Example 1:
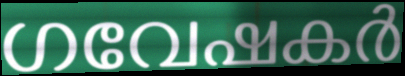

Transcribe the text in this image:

ഗവേഷകർ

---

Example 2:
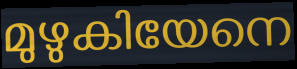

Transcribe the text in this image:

മുഴുകിയേനെ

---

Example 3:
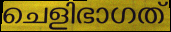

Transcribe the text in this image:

ചെളിഭാഗത്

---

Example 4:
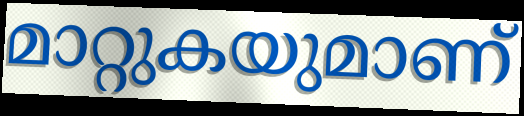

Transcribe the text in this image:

മാറ്റുകയുമാണ്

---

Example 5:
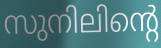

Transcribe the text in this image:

സുനിലിന്റെ